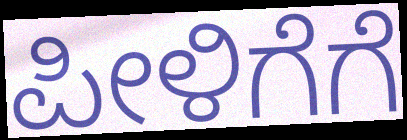
ಪೀಳಿಗೆಗೆ